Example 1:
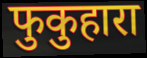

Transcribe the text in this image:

फुकुहारा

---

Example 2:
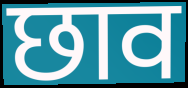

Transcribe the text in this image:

छाव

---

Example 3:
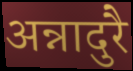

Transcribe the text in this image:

अन्नादुरै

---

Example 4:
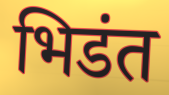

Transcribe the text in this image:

भिडंत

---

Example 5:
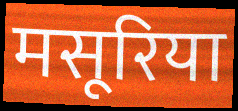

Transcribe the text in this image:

मसूरिया